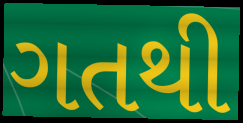
ગતથી